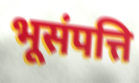
भूसंपत्ति